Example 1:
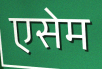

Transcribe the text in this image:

एसेम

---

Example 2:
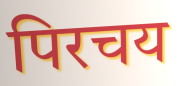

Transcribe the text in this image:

पिरचय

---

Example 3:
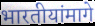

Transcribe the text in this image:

भारतीयांमागे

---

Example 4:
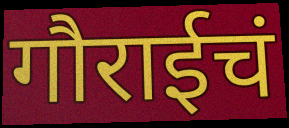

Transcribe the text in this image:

गौराईचं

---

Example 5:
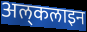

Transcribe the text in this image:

अल्कलाइन